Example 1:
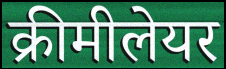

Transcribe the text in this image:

क्रीमीलेयर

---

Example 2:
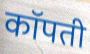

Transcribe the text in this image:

कॉपती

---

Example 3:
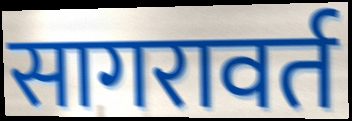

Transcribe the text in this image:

सागरावर्त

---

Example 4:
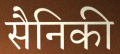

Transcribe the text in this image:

सैनिकी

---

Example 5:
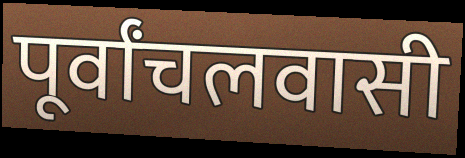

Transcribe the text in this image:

पूर्वांचलवासी